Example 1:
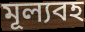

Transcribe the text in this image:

মূল্যবহ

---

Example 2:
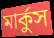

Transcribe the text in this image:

মার্কুস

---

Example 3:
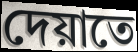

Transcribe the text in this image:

দেয়াতে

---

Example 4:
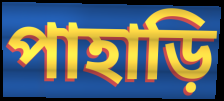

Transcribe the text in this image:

পাহাড়ি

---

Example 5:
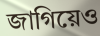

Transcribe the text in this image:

জাগিয়েও